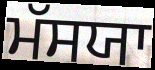
ਮੱਸਯਾ